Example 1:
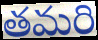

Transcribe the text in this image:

తమరి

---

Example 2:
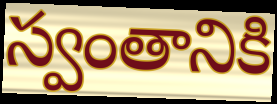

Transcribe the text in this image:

స్వంతానికి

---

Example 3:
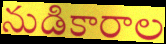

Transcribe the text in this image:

నుడికారాల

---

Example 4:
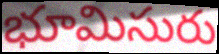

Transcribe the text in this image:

భూమిసురు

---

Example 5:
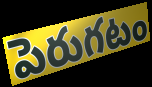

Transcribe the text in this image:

పెరుగటం